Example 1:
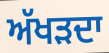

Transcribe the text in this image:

ਅੱਖੜਦਾ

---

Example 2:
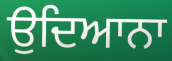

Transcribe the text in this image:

ਉਦਿਆਨਾ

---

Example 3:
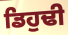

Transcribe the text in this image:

ਡਿਹੁਢੀ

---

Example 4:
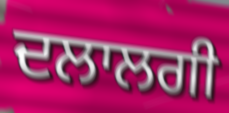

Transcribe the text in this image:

ਦਲਾਲਗੀ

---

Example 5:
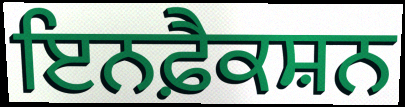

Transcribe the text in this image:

ਇਨਫ਼ੈਕਸ਼ਨ